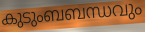
കുടുംബബന്ധവും